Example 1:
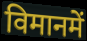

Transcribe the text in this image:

विमानमें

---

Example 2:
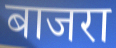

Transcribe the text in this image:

बाजरा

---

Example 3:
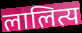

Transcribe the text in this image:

लालित्य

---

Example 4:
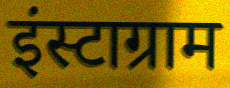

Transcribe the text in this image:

इंस्टाग्राम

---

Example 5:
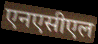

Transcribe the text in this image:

एनएसीएल